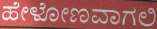
ಹೇಳೋಣವಾಗಲಿ